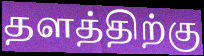
தளத்திற்கு